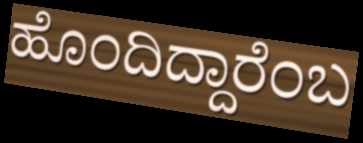
ಹೊಂದಿದ್ದಾರೆಂಬ